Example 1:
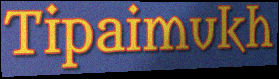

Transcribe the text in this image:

Tipaimukh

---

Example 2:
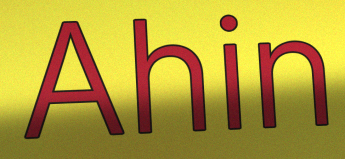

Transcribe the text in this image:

Ahin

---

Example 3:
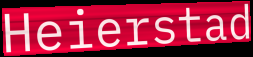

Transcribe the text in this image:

Heierstad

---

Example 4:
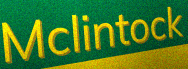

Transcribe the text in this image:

Mclintock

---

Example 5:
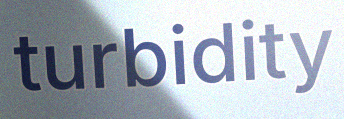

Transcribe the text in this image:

turbidity